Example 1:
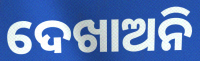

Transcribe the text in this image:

ଦେଖାଅନି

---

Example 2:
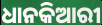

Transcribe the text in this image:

ଧାନକିଆରୀ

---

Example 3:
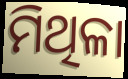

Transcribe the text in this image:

ମିଥିଳା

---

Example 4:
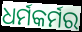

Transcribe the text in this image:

ଧର୍ମକର୍ମର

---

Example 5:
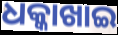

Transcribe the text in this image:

ଧକ୍କାଖାଇ